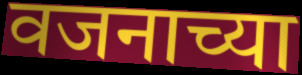
वजनाच्या